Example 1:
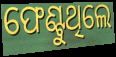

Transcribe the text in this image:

ଫେଣ୍ଟୁଥିଲେ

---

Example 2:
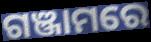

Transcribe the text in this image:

ଗଞ୍ଜାମରେ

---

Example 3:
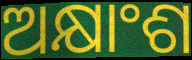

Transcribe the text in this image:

ଅକ୍ଷାଂଶ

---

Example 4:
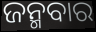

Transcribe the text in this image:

ଜନ୍ମବାର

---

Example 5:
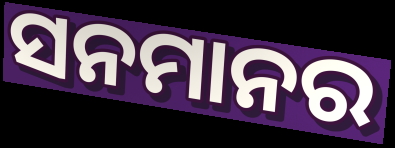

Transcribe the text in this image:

ସନମାନର